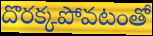
దొరక్కపోవటంతో